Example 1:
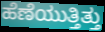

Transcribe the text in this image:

ಹೆಣೆಯುತ್ತಿತ್ತು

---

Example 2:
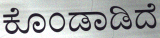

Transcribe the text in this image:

ಕೊಂಡಾಡಿದೆ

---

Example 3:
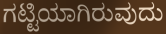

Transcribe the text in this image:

ಗಟ್ಟಿಯಾಗಿರುವುದು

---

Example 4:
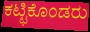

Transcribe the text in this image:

ಕಟ್ಟಿಕೊಂಡರು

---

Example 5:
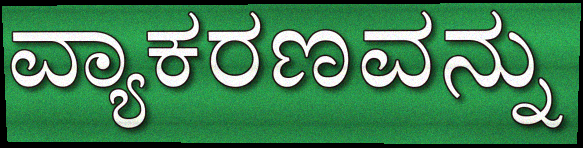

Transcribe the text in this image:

ವ್ಯಾಕರಣವನ್ನು